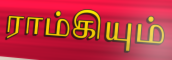
ராம்கியும்